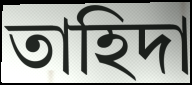
তাহিদা